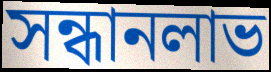
সন্ধানলাভ